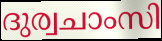
ദുര്വചാംസി